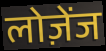
लोज़ेंज